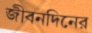
জীবনদিনের